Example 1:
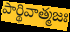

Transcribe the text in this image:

పార్థివాత్మజః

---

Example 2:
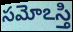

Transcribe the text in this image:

సమోఽస్తి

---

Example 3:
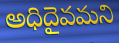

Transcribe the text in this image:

అధిదైవమని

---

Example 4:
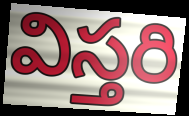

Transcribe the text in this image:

విస్తరి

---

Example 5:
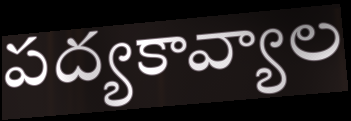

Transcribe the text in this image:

పద్యకావ్యాల